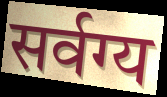
सर्वग्य